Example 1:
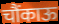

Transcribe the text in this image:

चौंकाऊ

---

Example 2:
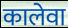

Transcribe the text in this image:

कालेवा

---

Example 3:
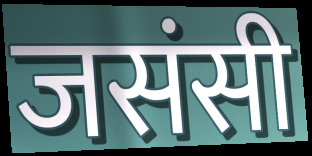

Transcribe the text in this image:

जसंसी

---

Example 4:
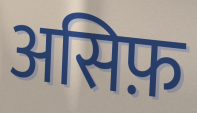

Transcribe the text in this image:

असिफ़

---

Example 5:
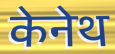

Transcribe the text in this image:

केनेथ